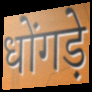
धोंगड़े